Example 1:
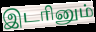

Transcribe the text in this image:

இடரினும்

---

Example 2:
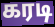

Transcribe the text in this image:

கரடி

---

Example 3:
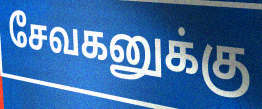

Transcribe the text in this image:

சேவகனுக்கு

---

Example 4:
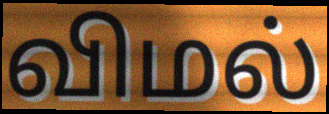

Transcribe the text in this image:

விமல்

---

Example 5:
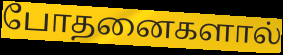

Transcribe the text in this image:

போதனைகளால்